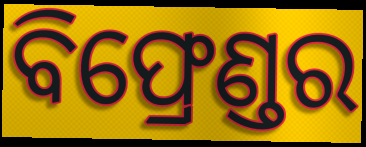
ବିଫ୍ରେଣ୍ଡର